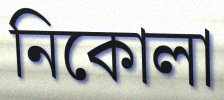
নিকোলা